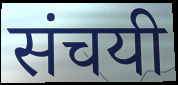
संचयी